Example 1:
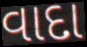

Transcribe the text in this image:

વાદા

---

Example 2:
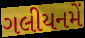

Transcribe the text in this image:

ગલીયનમેં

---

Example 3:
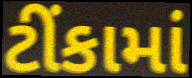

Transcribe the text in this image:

ટીંકામાં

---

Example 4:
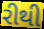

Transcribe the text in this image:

રીથી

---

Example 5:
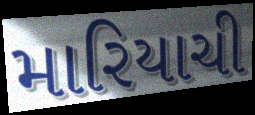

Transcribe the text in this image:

મારિયાચી